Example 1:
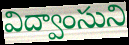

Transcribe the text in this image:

విద్వాంసుని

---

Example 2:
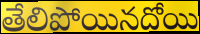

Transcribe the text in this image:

తేలిపోయినదోయి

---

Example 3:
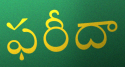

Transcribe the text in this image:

ఫరీదా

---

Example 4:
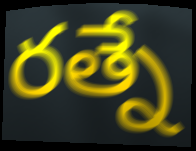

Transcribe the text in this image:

రత్నే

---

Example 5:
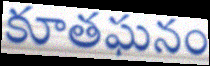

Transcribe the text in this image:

కూతఘనం